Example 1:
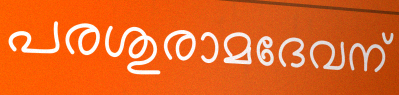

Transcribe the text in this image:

പരശുരാമദേവന്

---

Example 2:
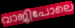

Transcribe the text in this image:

വാജിപോലെ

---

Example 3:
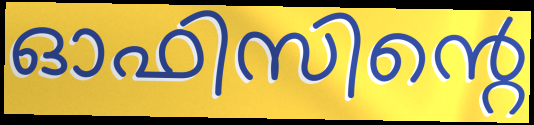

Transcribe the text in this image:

ഓഫിസിന്റെ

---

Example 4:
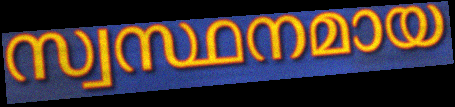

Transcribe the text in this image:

സ്വസ്ഥനമായ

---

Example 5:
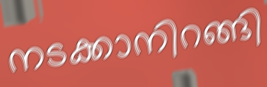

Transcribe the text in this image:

നടക്കാനിറങ്ങി